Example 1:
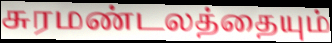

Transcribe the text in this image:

சுரமண்டலத்தையும்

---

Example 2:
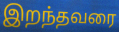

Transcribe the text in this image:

இறந்தவரை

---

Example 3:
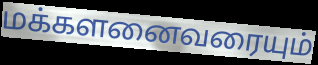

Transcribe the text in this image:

மக்களனைவரையும்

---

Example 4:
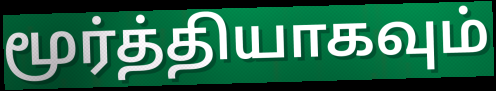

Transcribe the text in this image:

மூர்த்தியாகவும்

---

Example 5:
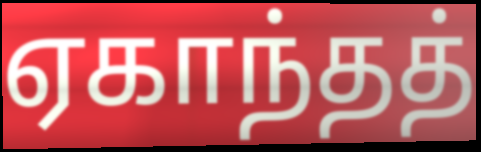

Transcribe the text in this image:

ஏகாந்தத்